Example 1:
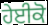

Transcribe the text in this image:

ਹੇਈਕੋ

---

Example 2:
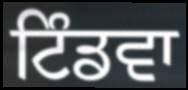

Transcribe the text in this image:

ਟਿੰਡਵਾ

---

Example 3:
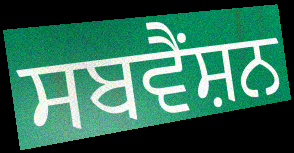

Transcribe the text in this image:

ਸਬਵੈਂਸ਼ਨ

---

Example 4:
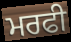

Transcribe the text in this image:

ਮਰਫੀ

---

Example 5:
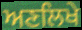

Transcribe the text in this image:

ਅਣਲਿਖੇ